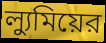
ল্যুমিয়ের